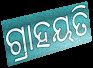
ଗ୍ରାହୟତି